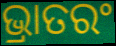
ଭ୍ରାତରଂ